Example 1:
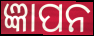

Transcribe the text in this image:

ଜ୍ଞାପନ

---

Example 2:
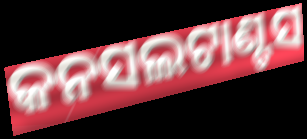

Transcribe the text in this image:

କନସଲଟାଣ୍ଟସ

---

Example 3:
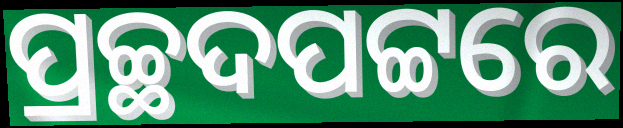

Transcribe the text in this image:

ପ୍ରଚ୍ଛଦପଟ୍ଟରେ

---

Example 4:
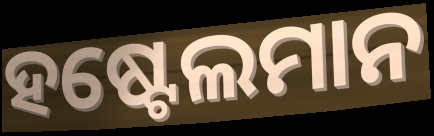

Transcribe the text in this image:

ହଷ୍ଟେଲମାନ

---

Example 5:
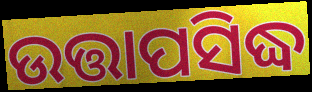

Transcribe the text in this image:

ଉତ୍ତାପସିଦ୍ଧ